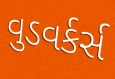
વુડવર્કર્સ